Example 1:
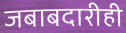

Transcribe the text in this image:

जबाबदारीही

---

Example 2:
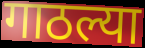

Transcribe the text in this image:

गाठल्या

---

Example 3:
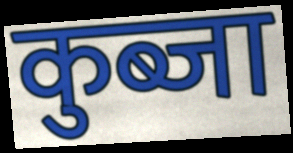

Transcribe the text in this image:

कुब्जा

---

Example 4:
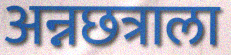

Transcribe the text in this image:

अन्नछत्राला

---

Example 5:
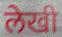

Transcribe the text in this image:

लेखी